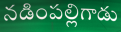
నడింపల్లిగాడు